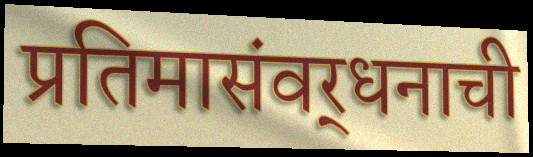
प्रतिमासंवर्धनाची